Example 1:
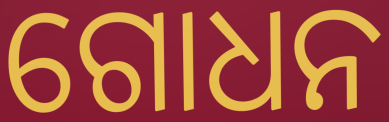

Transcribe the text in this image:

ଗୋଧନ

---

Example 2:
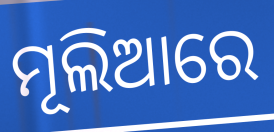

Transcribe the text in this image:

ମୂଲିଆରେ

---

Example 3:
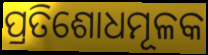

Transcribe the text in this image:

ପ୍ରତିଶୋଧମୂଳକ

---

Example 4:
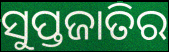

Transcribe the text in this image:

ସୁପ୍ତଜାତିର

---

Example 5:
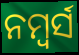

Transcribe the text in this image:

ନମ୍ୱର୍ସ